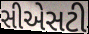
સીએસટી